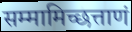
सम्मामिच्छत्ताणं